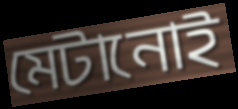
মেটানোই